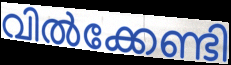
വിൽക്കേണ്ടി